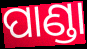
ପାଣ୍ଡା